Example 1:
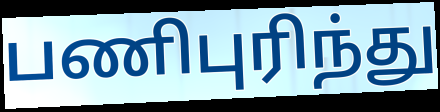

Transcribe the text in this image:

பணிபுரிந்து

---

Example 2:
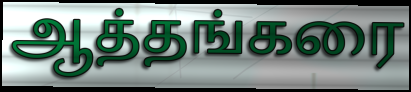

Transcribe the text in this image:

ஆத்தங்கரை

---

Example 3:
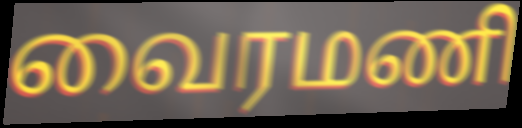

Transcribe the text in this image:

வைரமணி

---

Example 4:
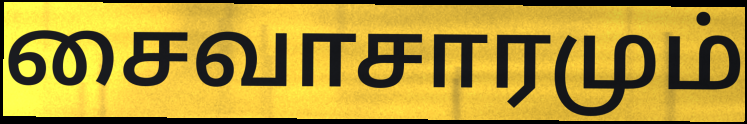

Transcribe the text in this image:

சைவாசாரமும்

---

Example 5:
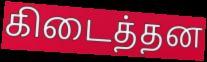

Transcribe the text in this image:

கிடைத்தன